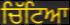
ਚਿੱਟਿਆ